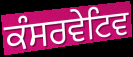
ਕੰਸਰਵੇਟਿਵ